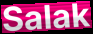
Salak